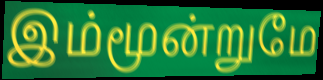
இம்மூன்றுமே